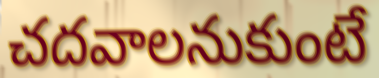
చదవాలనుకుంటే